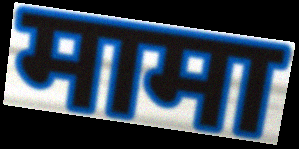
मामा